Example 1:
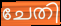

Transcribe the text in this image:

ചേതി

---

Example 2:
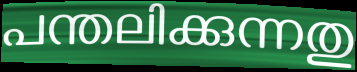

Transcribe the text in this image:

പന്തലിക്കുന്നതു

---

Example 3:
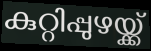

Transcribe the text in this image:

കുറ്റിപ്പുഴയ്ക്ക്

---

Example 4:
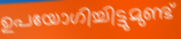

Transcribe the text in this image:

ഉപയോഗിച്ചിട്ടുമുണ്ട്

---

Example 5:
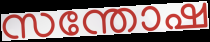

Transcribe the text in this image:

സന്തോഷ